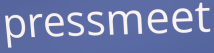
pressmeet